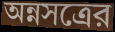
অন্নসত্রের